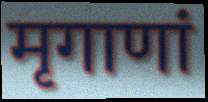
मृगाणां